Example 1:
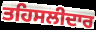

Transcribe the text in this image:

ਤਹਿਸਲੀਦਾਰ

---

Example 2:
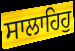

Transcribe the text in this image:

ਸਾਲਾਹਿਹੁ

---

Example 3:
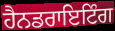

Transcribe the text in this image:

ਹੈਨਡਰਾਇਟਿੰਗ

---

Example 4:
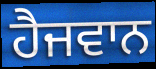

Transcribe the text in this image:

ਹੈਜਵਾਨ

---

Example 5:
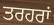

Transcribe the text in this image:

ਤਰਹਰਾਂ